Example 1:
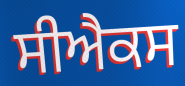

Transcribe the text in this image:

ਸੀਐਕਸ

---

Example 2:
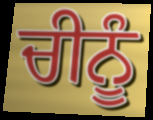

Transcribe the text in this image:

ਚੀਨੂੰ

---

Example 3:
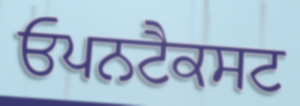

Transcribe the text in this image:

ਓਪਨਟੈਕਸਟ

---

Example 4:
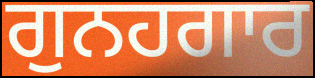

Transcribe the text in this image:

ਗੁਨਹਗਾਰ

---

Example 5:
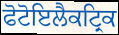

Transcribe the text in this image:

ਫੋਟੋਇਲੈਕਟ੍ਰਿਕ